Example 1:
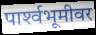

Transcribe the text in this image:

पार्श्‍वभूमीवर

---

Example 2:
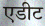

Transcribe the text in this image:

एडीट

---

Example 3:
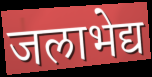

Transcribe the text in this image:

जलाभेद्य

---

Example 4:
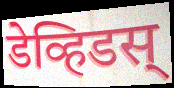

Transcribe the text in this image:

डेव्हिडस्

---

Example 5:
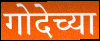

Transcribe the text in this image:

गोदेच्या